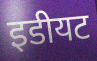
इडीयट